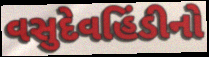
વસુદેવહિંડીનો